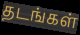
தடங்கள்